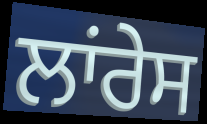
ਲਾਂਰੇਸ